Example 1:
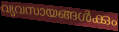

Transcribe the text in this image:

വ്യവസായങ്ങൾക്കും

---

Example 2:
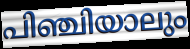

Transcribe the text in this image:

പിഞ്ചിയാലും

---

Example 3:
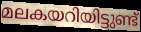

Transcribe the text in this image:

മലകയറിയിട്ടുണ്ട്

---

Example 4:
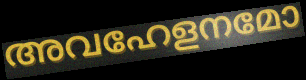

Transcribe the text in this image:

അവഹേളനമോ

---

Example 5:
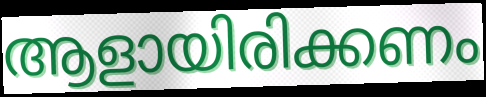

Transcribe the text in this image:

ആളായിരിക്കണം